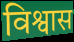
विश्वास